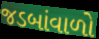
જડબાંવાળો